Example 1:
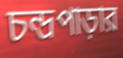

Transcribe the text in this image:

চন্দ্রপাড়ার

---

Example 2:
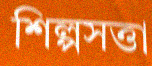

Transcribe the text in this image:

শিল্পসত্তা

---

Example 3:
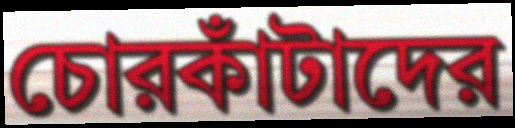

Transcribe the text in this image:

চোরকাঁটাদের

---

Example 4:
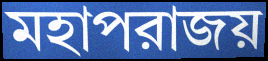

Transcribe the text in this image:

মহাপরাজয়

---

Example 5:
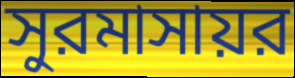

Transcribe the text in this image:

সুরমাসায়র